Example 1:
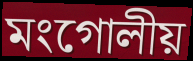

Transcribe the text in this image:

মংগোলীয়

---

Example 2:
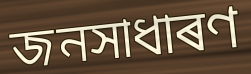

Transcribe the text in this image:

জনসাধাৰণ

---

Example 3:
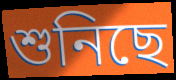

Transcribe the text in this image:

শুনিছে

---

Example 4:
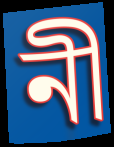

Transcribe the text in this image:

নী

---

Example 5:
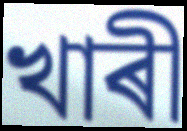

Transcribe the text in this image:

খাৰী